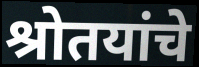
श्रोतयांचे